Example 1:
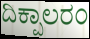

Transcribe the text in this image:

ದಿಕ್ಪಾಲರಂ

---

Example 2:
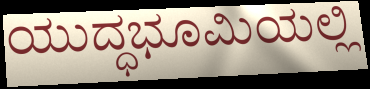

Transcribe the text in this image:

ಯುದ್ಧಭೂಮಿಯಲ್ಲಿ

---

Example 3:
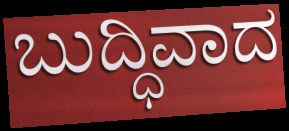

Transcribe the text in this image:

ಬುದ್ಧಿವಾದ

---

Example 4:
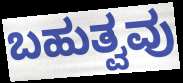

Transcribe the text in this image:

ಬಹುತ್ವವು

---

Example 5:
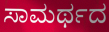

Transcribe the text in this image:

ಸಾಮರ್ಥದ